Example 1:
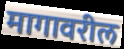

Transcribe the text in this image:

मागावरील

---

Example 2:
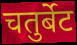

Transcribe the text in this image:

चतुर्बेट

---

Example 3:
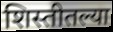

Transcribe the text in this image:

शिस्तीतल्या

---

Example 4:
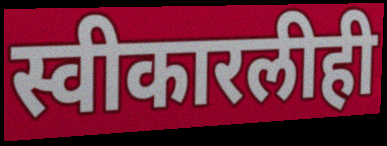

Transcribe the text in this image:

स्वीकारलीही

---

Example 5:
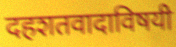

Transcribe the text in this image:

दहशतवादाविषयी